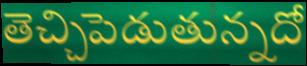
తెచ్చిపెడుతున్నదో